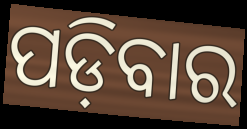
ପଡ଼ିବାର